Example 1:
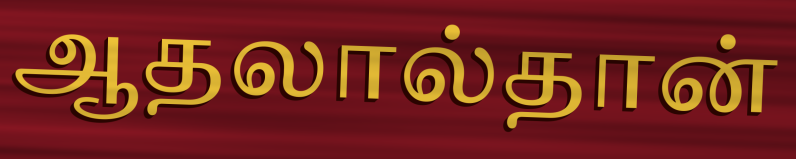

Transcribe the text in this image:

ஆதலால்தான்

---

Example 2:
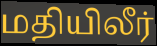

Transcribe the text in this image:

மதியிலீர்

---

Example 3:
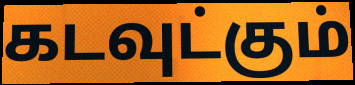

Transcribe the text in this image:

கடவுட்கும்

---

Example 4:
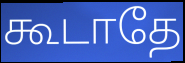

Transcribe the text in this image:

கூடாதே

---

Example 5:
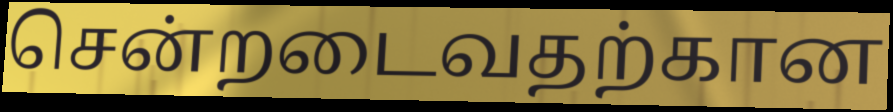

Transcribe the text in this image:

சென்றடைவதற்கான